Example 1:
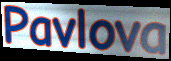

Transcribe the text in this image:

Pavlova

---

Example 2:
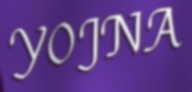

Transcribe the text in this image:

YOJNA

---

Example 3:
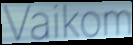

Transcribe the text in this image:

Vaikom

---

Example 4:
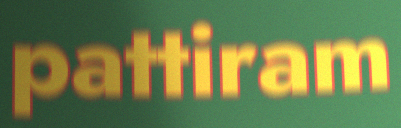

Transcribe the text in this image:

pattiram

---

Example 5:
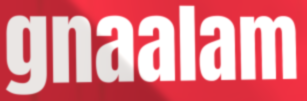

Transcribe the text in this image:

gnaalam